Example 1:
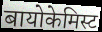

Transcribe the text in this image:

बायोकेमिस्ट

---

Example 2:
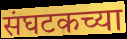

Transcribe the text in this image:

संघटकच्या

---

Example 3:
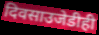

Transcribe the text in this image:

दिवसाउजेडीही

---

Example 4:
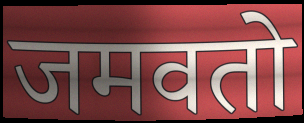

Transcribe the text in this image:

जमवतो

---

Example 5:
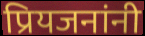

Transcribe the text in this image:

प्रियजनांनी